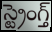
స్ట్రెంగ్త్